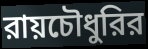
রায়চৌধুরির